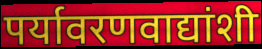
पर्यावरणवाद्यांशी